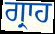
ਗ੍ਰਾਹ